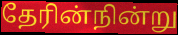
தேரின்நின்று